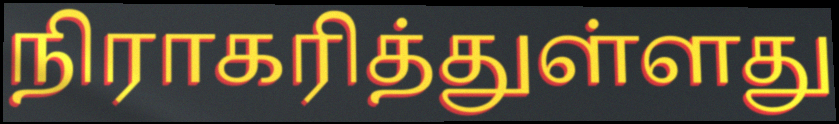
நிராகரித்துள்ளது